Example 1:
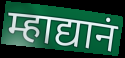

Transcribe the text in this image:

म्हाद्यानं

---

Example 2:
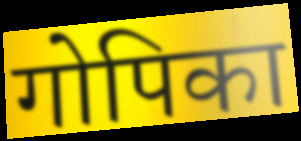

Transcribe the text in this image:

गोपिका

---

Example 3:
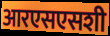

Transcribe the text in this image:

आरएसएसशी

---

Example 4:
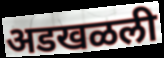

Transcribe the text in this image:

अडखळली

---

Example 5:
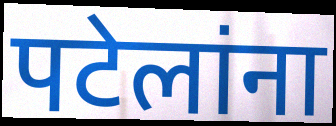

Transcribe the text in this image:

पटेलांना